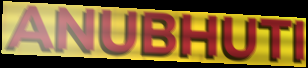
ANUBHUTI